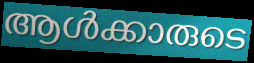
ആൾക്കാരുടെ